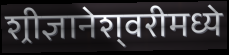
श्रीज्ञानेश्वरीमध्ये